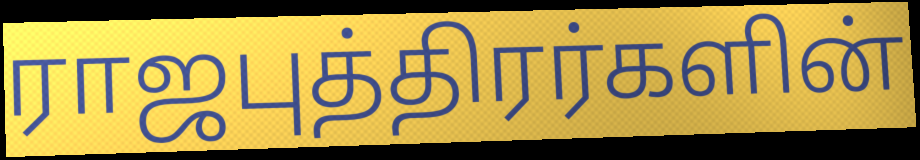
ராஜபுத்திரர்களின்